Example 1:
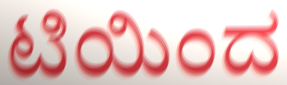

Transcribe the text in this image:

ಟಿಯಿಂದ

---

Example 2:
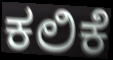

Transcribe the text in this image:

ಕಲಿಕೆ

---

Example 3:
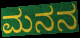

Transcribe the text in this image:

ಮನನ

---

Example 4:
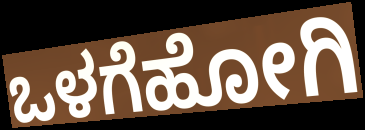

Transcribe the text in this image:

ಒಳಗೆಹೋಗಿ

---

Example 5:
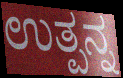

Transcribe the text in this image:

ಉತ್ಪನ್ನ